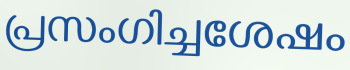
പ്രസംഗിച്ചശേഷം